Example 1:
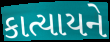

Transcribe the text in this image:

કાત્યાયને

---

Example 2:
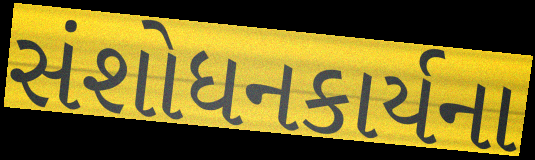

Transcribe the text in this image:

સંશોધનકાર્યના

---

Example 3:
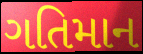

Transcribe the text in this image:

ગતિમાન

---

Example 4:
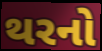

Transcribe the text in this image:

થરનો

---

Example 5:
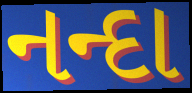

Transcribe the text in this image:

નન્દા